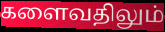
களைவதிலும்